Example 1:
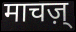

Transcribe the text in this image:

माचज़्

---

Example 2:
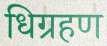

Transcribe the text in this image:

धिग्रहण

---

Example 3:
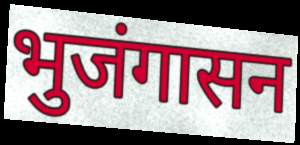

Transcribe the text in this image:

भुजंगासन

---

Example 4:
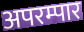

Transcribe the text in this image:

अपरम्पार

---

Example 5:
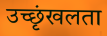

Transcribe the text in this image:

उच्छृंखलता